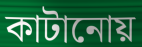
কাটানোয়